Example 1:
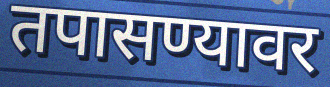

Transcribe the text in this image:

तपासण्यावर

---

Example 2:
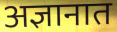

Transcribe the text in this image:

अज्ञानात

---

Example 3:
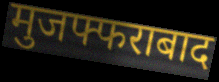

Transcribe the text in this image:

मुजफ्फराबाद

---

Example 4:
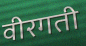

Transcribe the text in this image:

वीरगती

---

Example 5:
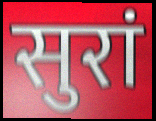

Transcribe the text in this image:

सुरां